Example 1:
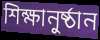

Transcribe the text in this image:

শিক্ষানুষ্ঠান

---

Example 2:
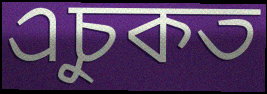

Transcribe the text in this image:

এচুকত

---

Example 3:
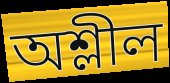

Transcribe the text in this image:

অশ্লীল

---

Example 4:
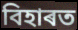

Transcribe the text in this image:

বিহাৰত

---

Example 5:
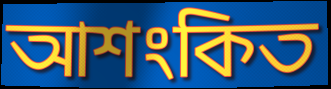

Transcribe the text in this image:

আশংকিত